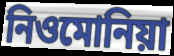
নিওমোনিয়া